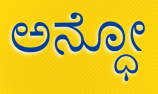
ಅನ್ಧೋ